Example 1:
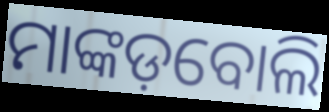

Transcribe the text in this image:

ମାଙ୍କଡ଼ବୋଲି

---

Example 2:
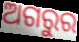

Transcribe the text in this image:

ଅଗରୁର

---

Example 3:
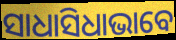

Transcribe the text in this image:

ସାଧାସିଧାଭାବେ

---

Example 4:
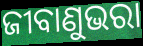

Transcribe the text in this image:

ଜୀବାଣୁଭରା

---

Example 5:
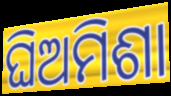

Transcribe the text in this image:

ଘିଅମିଶା